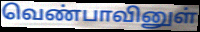
வெண்பாவினுள்